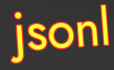
jsonl